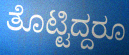
ತೊಟ್ಟಿದ್ದರೂ